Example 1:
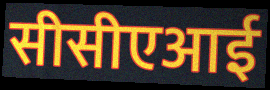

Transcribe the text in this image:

सीसीएआई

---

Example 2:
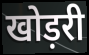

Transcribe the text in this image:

खोड़री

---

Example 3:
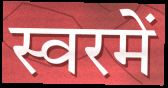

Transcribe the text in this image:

स्वरमें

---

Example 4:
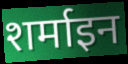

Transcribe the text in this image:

शर्माइन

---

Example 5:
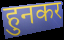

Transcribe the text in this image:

हुनकर